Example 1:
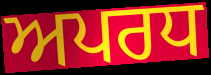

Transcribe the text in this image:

ਅਪਰਧ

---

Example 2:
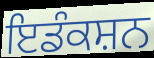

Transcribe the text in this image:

ਇਡੰਕਸ਼ਨ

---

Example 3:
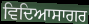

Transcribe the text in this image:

ਵਿਦਿਆਸਾਗਰ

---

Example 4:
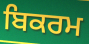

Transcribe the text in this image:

ਬਿਕਰਮ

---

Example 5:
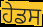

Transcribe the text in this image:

ਹੇਡਸ